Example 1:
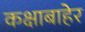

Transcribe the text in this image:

कक्षाबाहेर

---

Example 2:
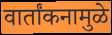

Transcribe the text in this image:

वार्तांकनामुळे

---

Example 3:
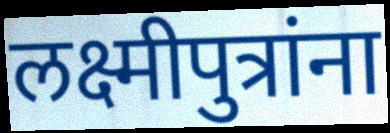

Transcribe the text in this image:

लक्ष्मीपुत्रांना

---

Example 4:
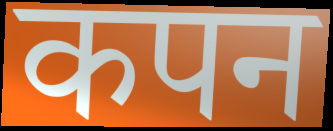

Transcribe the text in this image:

कपन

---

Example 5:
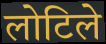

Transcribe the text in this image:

लोटिले